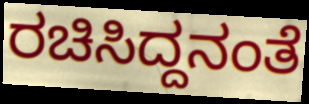
ರಚಿಸಿದ್ದನಂತೆ